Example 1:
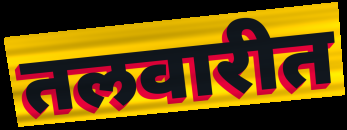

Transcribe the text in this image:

तलवारीत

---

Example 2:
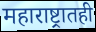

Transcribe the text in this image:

महाराष्ट्रातही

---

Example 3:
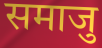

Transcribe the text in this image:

समाजु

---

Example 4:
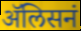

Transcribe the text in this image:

ॲलिसनं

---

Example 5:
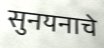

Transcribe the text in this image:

सुनयनाचे